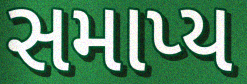
સમાપ્ય